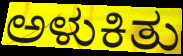
ಅಳುಕಿತು